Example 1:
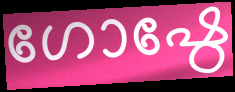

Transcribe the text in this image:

ഗോഷ്ഠേ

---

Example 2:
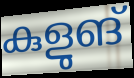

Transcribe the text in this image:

കുളുങ്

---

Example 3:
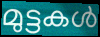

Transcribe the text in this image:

മുട്ടകൾ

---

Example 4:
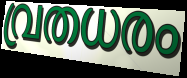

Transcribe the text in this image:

വ്രതധരം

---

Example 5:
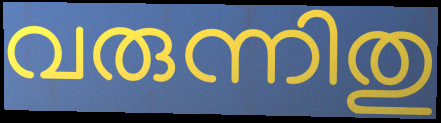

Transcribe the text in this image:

വരുന്നിതു